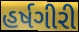
હર્ષગીરી